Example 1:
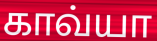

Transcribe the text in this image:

காவ்யா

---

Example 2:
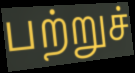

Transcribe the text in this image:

பற்றுச்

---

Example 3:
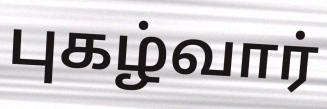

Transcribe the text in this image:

புகழ்வார்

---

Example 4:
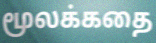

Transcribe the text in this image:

மூலக்கதை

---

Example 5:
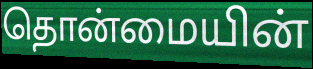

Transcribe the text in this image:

தொன்மையின்